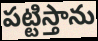
పట్టిస్తాను